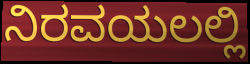
ನಿರವಯಲಲ್ಲಿ